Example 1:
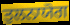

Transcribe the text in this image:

ਤੁਲਨਾਯੋਗ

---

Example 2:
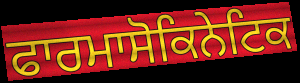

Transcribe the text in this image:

ਫਾਰਮਾਸੋਕਿਨੇਟਿਕ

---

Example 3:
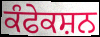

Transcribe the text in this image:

ਕੰਫੇਕਸ਼ਨ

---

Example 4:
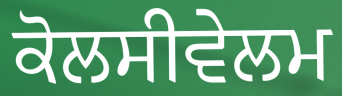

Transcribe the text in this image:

ਕੋਲਸੀਵੇਲਮ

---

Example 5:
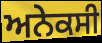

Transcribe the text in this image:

ਅਨੇਕਸੀ